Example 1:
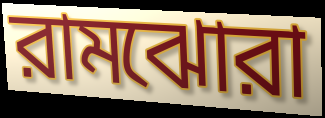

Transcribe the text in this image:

রামঝোরা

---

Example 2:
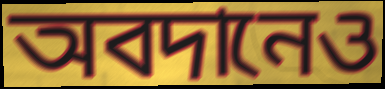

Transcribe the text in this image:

অবদানেও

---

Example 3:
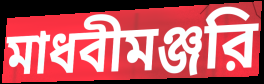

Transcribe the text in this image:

মাধবীমঞ্জরি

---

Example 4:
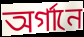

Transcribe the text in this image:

অর্গানে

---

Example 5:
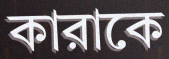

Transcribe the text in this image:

কারাকে